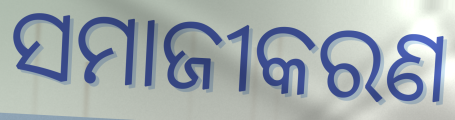
ସମାଜୀକରଣ